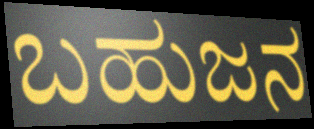
ಬಹುಜನ